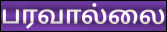
பரவால்லை